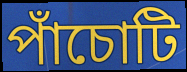
পাঁচোটি